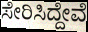
ಸೇರಿಸಿದ್ದೇವೆ